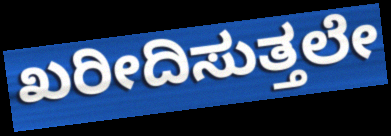
ಖರೀದಿಸುತ್ತಲೇ